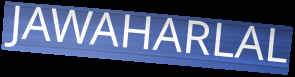
JAWAHARLAL